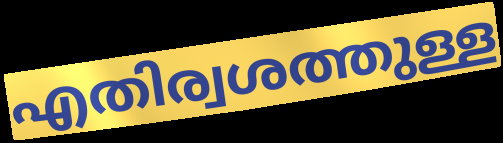
എതിര്വശത്തുള്ള